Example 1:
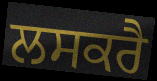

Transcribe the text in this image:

ਲਸਕਰੈ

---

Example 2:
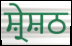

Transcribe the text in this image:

ਸ਼੍ਰੇਸ਼ਠ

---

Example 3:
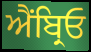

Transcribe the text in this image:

ਐਂਬ੍ਰਿਓ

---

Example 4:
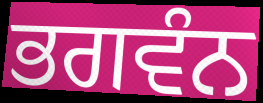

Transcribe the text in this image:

ਭਗਵੰਨ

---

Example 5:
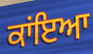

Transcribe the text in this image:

ਕਾਂਇਆ